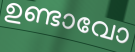
ഉണ്ടാവോ